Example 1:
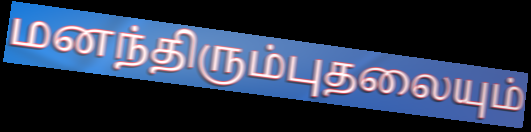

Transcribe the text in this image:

மனந்திரும்புதலையும்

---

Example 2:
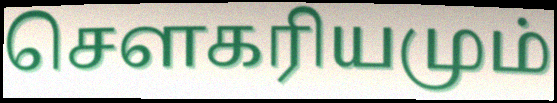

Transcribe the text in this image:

சௌகரியமும்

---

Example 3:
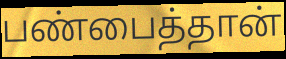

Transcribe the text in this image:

பண்பைத்தான்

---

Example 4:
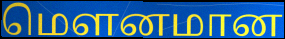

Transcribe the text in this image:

மௌனமான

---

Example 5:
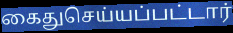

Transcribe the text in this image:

கைதுசெய்யப்பட்டார்